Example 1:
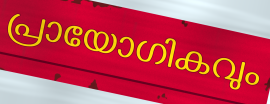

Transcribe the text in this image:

പ്രായോഗികവും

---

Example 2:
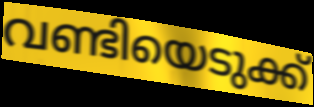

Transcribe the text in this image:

വണ്ടിയെടുക്ക്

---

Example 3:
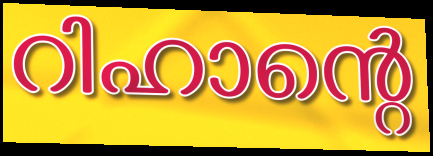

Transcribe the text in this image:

റിഹാന്റെ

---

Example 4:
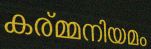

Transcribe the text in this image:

കര്മ്മനിയമം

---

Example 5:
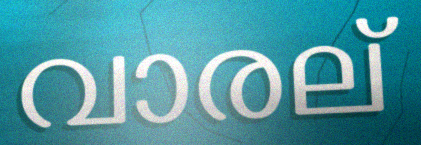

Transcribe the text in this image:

വാരല്